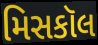
મિસકૉલ